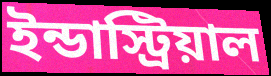
ইন্ডাস্ট্রিয়াল